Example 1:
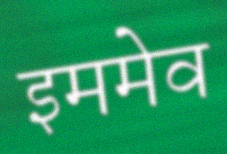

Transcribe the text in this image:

इममेव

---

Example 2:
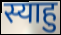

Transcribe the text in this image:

स्याहु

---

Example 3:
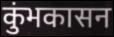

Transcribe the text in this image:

कुंभकासन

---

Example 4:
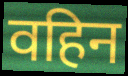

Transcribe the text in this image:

वहिन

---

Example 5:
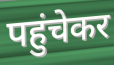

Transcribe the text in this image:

पहुंचेकर